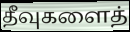
தீவுகளைத்